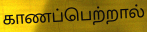
காணப்பெற்றால்